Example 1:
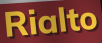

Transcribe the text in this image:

Rialto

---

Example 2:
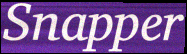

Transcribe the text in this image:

Snapper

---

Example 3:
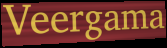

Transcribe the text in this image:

Veergama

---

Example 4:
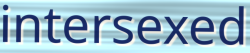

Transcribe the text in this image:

intersexed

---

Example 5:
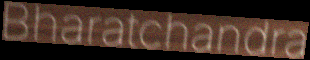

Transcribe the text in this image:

Bharatchandra